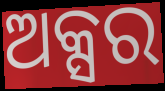
ଅକ୍ସର